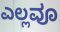
ಎಲ್ಲವೂ